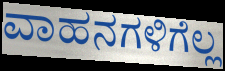
ವಾಹನಗಳಿಗೆಲ್ಲ